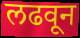
लढवून